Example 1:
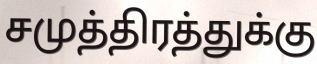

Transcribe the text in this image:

சமுத்திரத்துக்கு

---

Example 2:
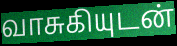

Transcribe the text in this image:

வாசுகியுடன்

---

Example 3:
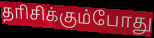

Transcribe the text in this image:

தரிசிக்கும்போது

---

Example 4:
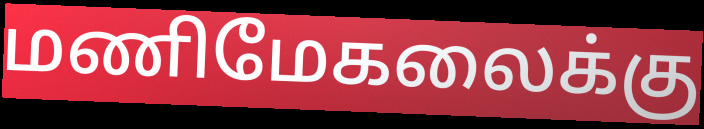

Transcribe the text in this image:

மணிமேகலைக்கு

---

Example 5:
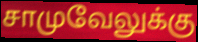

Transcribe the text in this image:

சாமுவேலுக்கு